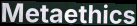
Metaethics